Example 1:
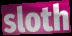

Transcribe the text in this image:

sloth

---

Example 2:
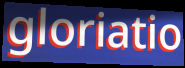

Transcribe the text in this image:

gloriatio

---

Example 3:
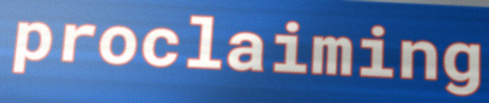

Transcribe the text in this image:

proclaiming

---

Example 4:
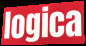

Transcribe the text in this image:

logica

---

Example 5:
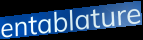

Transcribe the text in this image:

entablature